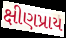
ક્ષીણપ્રાય